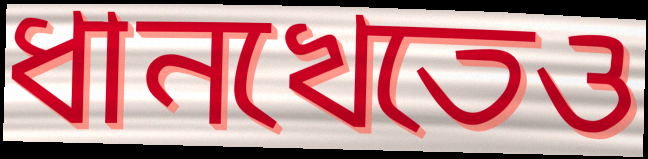
ধানখেতেও